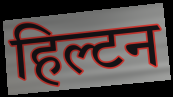
हिल्टन